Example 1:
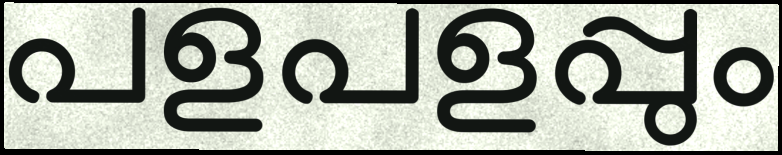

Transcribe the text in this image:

പളപളപ്പും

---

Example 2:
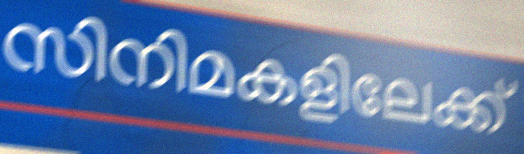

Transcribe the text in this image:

സിനിമകളിലേക്ക്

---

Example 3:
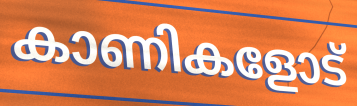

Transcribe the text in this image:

കാണികളോട്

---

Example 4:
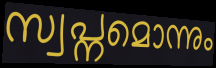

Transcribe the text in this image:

സ്വപ്നമൊന്നും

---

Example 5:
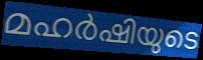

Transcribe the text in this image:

മഹർഷിയുടെ